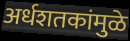
अर्धशतकांमुळे